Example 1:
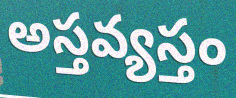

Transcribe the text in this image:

అస్తవ్యస్తం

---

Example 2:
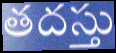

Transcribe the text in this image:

తదస్తు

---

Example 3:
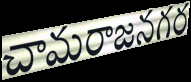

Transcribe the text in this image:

చామరాజనగర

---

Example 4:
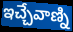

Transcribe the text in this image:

ఇచ్చేవాణ్ని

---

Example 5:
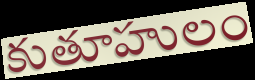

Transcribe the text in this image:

కుతూహులం